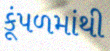
કૂંપળમાંથી